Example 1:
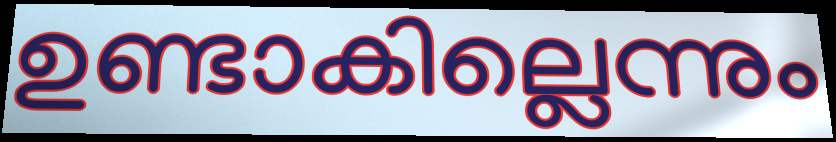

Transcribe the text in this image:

ഉണ്ടാകില്ലെന്നും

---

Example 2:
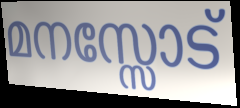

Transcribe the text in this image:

മനസ്സോട്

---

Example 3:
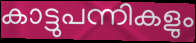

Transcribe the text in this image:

കാട്ടുപന്നികളും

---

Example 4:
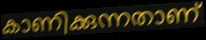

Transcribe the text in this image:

കാണിക്കുന്നതാണ്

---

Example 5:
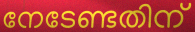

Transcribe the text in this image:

നേടേണ്ടതിന്